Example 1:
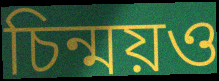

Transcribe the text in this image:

চিন্ময়ও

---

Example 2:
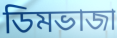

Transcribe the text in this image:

ডিমভাজা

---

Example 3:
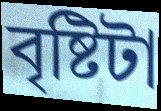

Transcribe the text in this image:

বৃষ্টিটা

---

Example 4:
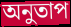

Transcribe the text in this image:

অনুতাপ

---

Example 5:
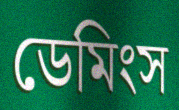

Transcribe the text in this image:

ডেমিংস